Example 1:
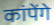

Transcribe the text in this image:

कांपेंगे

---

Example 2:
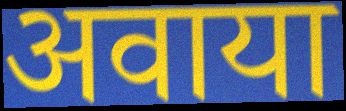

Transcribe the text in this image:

अवाया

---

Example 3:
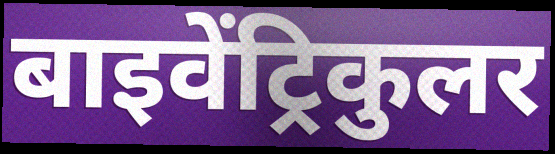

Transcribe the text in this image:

बाइवेंट्रिकुलर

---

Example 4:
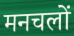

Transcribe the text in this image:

मनचलों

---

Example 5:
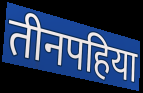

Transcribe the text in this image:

तीनपहिया